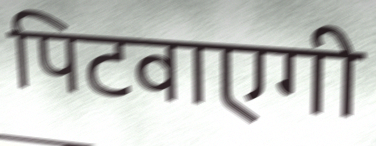
पिटवाएगी